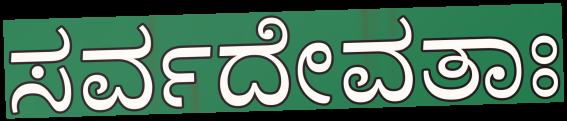
ಸರ್ವದೇವತಾಃ